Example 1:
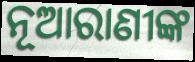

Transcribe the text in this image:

ନୂଆରାଣୀଙ୍କ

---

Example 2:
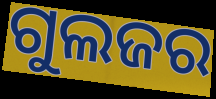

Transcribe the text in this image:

ଗୁଲଜର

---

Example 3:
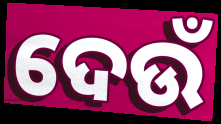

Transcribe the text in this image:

ଦେଉଁ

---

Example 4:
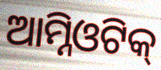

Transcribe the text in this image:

ଆମ୍ନିଓଟିକ୍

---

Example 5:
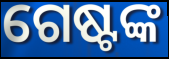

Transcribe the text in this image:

ଗେଷ୍ଟଙ୍କ